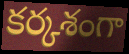
కర్కశంగా